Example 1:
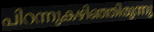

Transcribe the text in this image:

പിറന്നുകഴിഞ്ഞിരുന്നു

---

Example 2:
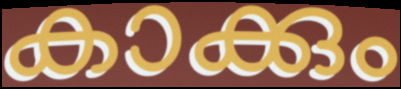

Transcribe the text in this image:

കാക്കും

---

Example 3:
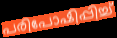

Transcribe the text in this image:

പരിപോഷിപ്പിച്ച്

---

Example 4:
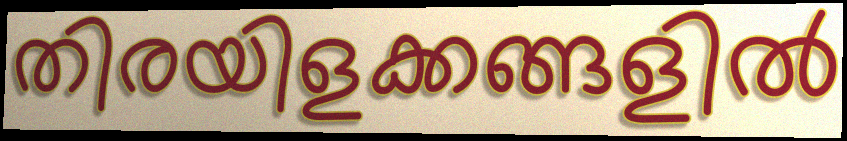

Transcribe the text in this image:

തിരയിളക്കങ്ങളിൽ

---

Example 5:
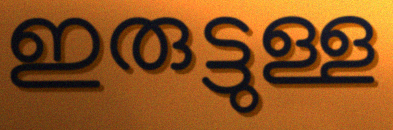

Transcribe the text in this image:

ഇരുട്ടുള്ള